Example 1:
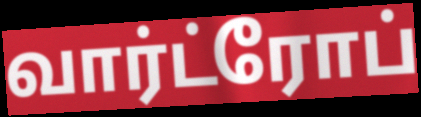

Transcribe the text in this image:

வார்ட்ரோப்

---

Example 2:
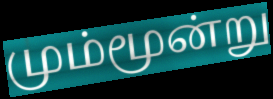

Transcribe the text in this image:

மும்மூன்று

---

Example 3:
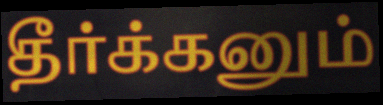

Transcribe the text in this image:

தீர்க்கனும்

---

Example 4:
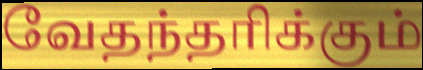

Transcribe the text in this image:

வேதந்தரிக்கும்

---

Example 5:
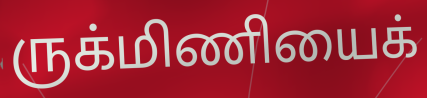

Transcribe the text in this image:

ருக்மிணியைக்